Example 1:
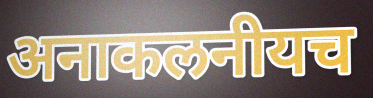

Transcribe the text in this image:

अनाकलनीयच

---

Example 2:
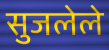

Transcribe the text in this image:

सुजलेले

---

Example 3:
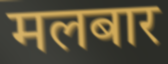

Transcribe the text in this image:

मलबार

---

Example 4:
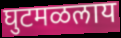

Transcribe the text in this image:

घुटमळलाय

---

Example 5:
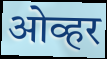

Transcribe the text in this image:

ओव्हर